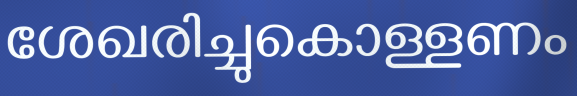
ശേഖരിച്ചുകൊള്ളണം